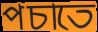
পচাতে